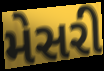
મેસરી